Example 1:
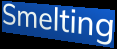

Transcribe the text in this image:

Smelting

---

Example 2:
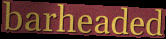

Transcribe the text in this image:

barheaded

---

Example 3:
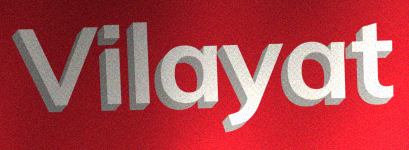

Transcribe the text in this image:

Vilayat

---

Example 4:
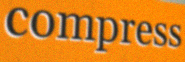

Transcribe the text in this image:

compress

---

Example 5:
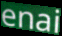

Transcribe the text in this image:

enai